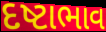
દષ્ટાભાવ